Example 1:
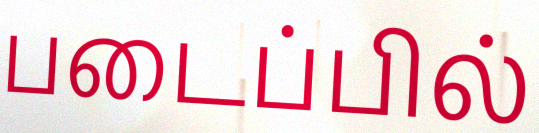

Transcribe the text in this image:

படைப்பில்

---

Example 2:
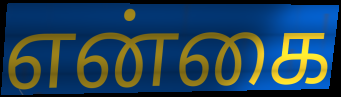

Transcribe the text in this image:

என்கை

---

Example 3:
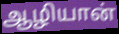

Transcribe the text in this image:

ஆழியான்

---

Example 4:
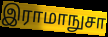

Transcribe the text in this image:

இராமாநுசா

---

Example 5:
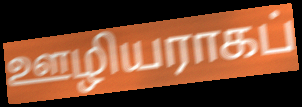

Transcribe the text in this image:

ஊழியராகப்